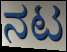
ನಟ